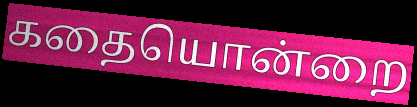
கதையொன்றை